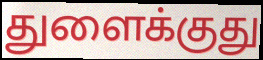
துளைக்குது